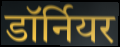
डॉर्नियर